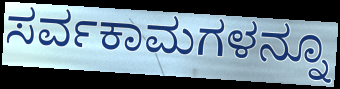
ಸರ್ವಕಾಮಗಳನ್ನೂ